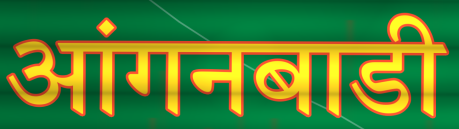
आंगनबाडी